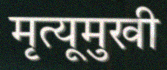
मृत्यूमुखी